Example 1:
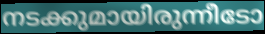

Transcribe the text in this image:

നടക്കുമായിരുന്നീടോ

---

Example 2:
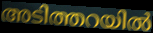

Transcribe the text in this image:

അടിത്തറയിൽ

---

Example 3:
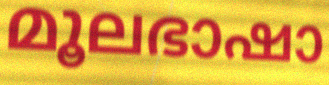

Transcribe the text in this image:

മൂലഭാഷാ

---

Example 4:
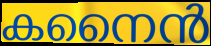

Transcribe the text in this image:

കനൈൻ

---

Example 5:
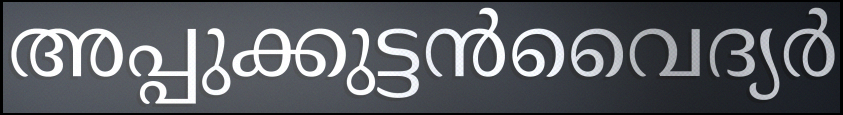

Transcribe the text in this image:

അപ്പുക്കുട്ടൻവൈദ്യർ